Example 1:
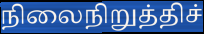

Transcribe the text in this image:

நிலைநிறுத்திச்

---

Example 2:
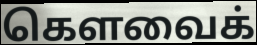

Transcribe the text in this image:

கௌவைக்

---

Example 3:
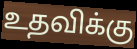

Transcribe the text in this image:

உதவிக்கு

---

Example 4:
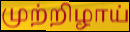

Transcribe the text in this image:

முற்றிழாய்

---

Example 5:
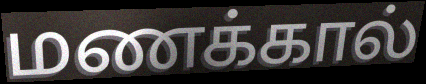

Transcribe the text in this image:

மணக்கால்